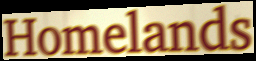
Homelands